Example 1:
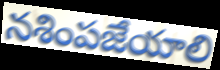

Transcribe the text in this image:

నశింపజేయాలి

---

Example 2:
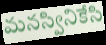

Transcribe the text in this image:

మనస్వినికేసి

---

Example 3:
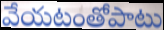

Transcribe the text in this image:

వేయటంతోపాటు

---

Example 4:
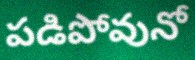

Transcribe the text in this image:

పడిపోవునో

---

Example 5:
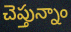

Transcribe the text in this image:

చెప్తున్నాం